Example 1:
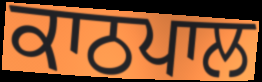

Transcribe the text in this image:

ਕਾਠਪਾਲ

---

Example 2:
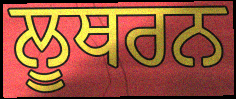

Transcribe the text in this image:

ਲੂਥਰਨ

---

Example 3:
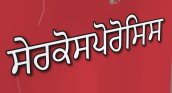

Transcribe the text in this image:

ਸੇਰਕੋਸਪੋਰੋਸਿਸ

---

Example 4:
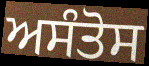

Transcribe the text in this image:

ਅਸੰਤੋਸ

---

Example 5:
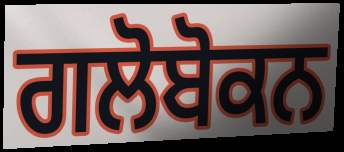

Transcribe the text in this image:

ਗਲੋਬੋਕਨ